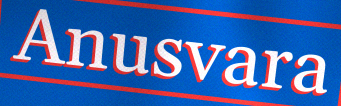
Anusvara